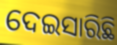
ଦେଇସାରିଛି